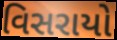
વિસરાયો